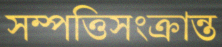
সম্পত্তিসংক্রান্ত